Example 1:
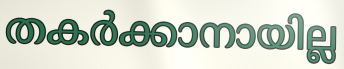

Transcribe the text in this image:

തകർക്കാനായില്ല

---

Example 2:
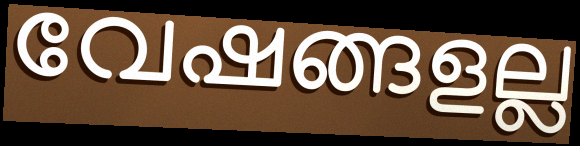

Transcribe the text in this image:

വേഷങ്ങളല്ല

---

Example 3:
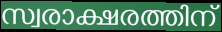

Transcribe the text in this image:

സ്വരാക്ഷരത്തിന്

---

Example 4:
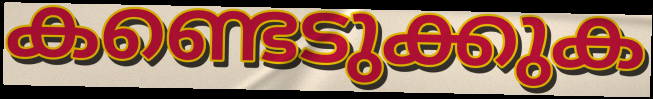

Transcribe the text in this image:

കണ്ടെടുക്കുക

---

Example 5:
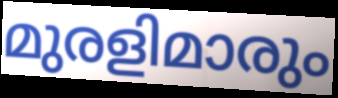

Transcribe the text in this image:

മുരളിമാരും